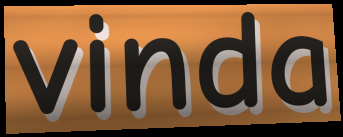
vinda